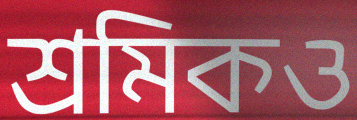
শ্রমিকও